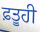
ਫ਼ਤੂਹੀ